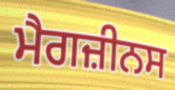
ਮੈਗਜ਼ੀਨਸ